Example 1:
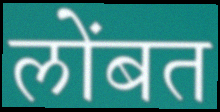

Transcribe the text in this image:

लोंबत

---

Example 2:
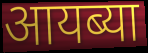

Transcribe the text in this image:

आयब्या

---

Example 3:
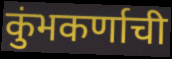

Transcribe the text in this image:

कुंभकर्णाची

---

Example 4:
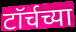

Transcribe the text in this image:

टॉर्चच्या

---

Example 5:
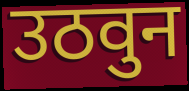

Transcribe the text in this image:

उठवुन